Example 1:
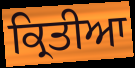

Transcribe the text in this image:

ਕ੍ਰਿਤੀਆ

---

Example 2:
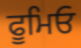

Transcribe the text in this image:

ਫੂਮਿਓ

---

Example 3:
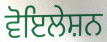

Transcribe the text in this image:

ਵੋਇਲੇਸ਼ਨ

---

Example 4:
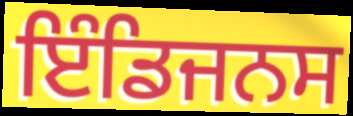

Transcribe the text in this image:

ਇੰਡਿਜਨਸ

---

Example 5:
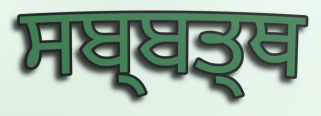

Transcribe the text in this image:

ਸਬ੍ਬਤ੍ਥ